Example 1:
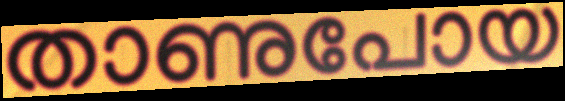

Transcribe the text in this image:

താണുപോയ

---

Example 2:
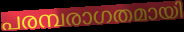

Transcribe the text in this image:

പരമ്പരാഗതമായി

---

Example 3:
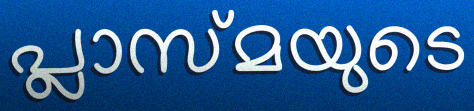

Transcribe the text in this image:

പ്ലാസ്മയുടെ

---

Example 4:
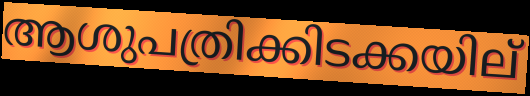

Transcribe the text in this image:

ആശുപത്രിക്കിടക്കയില്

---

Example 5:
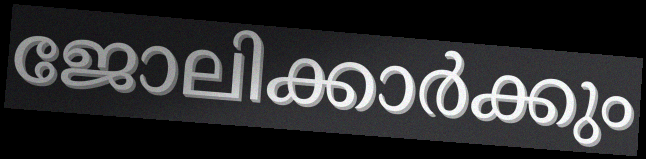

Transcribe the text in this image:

ജോലിക്കാർക്കും